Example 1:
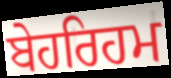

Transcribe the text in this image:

ਬੇਹਰਿਹਮ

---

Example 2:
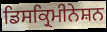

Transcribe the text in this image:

ਡਿਸਕ੍ਰਿਮੀਨੇਸ਼ਨ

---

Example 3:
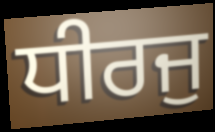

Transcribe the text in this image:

ਧੀਰਜੁ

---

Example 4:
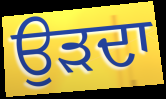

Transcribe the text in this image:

ਉੜਦਾ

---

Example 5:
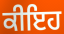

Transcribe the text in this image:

ਕੀਇਹ